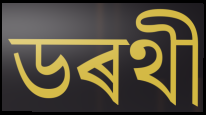
ডৰথী